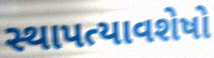
સ્થાપત્યાવશેષો